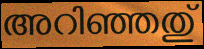
അറിഞ്ഞതു്